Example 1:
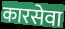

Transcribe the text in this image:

कारसेवा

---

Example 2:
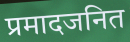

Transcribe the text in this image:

प्रमादजनित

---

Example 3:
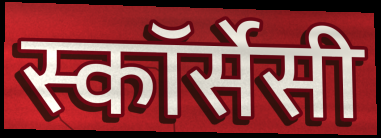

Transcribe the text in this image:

स्कॉर्सेसी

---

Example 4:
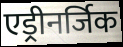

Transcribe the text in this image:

एड्रीनर्जिक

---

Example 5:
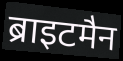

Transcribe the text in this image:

ब्राइटमैन